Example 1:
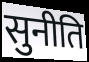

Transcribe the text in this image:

सुनीति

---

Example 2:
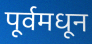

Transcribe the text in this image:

पूर्वमधून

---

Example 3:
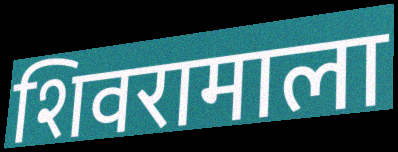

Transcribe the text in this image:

शिवरामाला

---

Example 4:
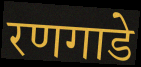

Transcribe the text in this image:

रणगाडे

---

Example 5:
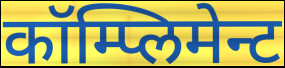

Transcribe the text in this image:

कॉम्प्लिमेन्ट